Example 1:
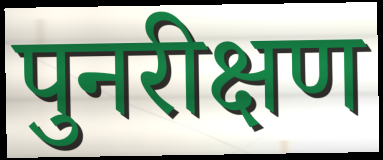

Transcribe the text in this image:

पुनरीक्षण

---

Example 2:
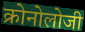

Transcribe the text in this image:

क्रोनोलोजी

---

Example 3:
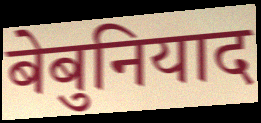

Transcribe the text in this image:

बेबुनियाद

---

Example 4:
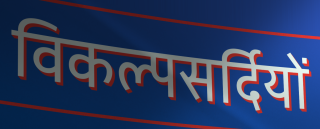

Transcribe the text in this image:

विकल्पसर्दियों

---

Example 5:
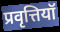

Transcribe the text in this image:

प्रवृत्तियॉ